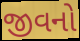
જીવનો